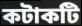
কটাকটি